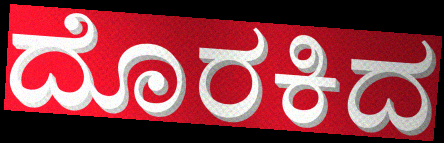
ದೊರಕಿದ